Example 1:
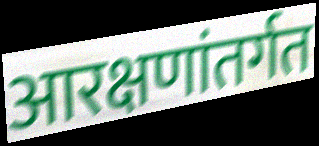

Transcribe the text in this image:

आरक्षणांतर्गत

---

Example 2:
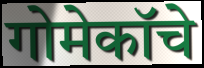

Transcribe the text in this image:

गोमेकॉचे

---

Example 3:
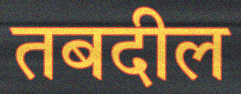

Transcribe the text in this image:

तबदील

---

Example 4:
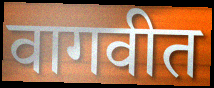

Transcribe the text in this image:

वागवीत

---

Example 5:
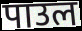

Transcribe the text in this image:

पाउल